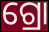
ଗ୍ରୋ